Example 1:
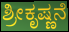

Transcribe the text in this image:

ಶ್ರೀಕೃಷ್ಣನೆ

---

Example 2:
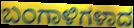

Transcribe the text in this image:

ಬಂಗಾಳಿಗಳಾದ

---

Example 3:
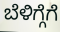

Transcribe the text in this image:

ಬೆಳಿಗ್ಗೆಗೆ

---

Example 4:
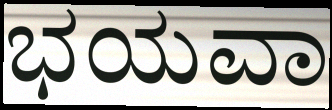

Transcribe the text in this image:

ಭಯವಾ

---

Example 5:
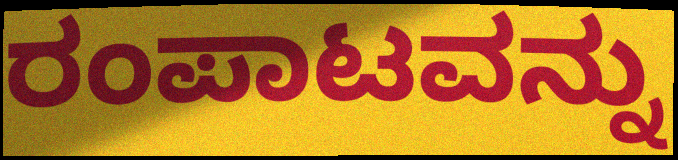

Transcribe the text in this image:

ರಂಪಾಟವನ್ನು